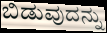
ಬಿಡುವುದನ್ನು